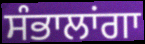
ਸੰਭਾਲਾਂਗਾ